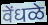
वेंधळे